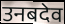
उनबदेव